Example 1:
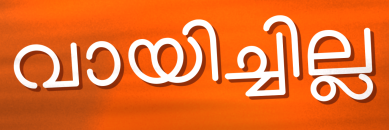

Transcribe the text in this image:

വായിച്ചില്ല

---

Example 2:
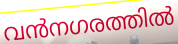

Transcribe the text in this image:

വൻനഗരത്തിൽ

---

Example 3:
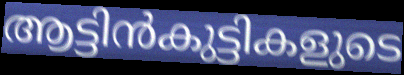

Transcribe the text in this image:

ആട്ടിൻകുട്ടികളുടെ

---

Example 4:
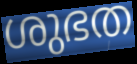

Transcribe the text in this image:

ശുഭത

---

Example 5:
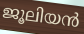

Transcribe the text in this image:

ജൂലിയൻ